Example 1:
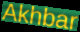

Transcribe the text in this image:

Akhbar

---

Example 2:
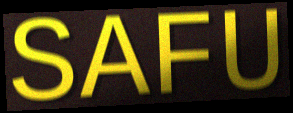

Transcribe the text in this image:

SAFU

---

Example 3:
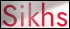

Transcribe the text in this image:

Sikhs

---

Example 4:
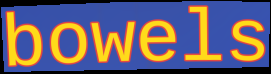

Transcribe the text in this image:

bowels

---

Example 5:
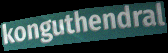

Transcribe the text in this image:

konguthendral